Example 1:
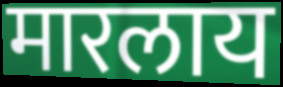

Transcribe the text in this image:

मारलाय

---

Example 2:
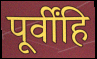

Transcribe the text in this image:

पूर्वींहि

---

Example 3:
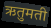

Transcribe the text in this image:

ऋतुमती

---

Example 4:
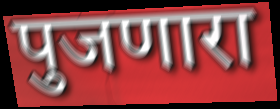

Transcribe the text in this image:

पुजणारा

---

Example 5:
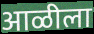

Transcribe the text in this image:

आळीला